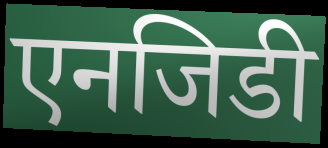
एनजिडी